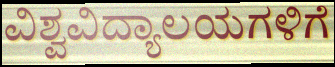
ವಿಶ್ವವಿದ್ಯಾಲಯಗಳಿಗೆ